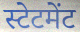
स्टेटमेंट